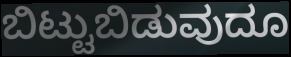
ಬಿಟ್ಟುಬಿಡುವುದೂ